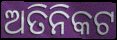
ଅତିନିକଟ